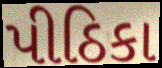
પીઠિકા